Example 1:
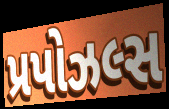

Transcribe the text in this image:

પ્રપોઝલ્સ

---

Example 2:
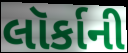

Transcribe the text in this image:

લૉર્કાની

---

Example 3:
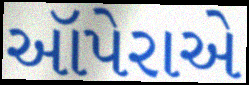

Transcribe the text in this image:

ઑપેરાએ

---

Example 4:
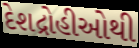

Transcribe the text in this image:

દેશદ્રોહીઓથી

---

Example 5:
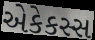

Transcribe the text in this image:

એકેકસ્સ